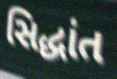
સિદ્ધાંત